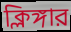
ক্লিঙ্গার